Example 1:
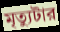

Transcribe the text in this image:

মৃত্যুটার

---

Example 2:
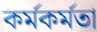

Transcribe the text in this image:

কর্মকর্মতা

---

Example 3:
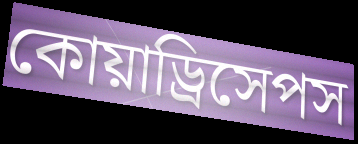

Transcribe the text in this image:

কোয়াড্রিসেপস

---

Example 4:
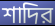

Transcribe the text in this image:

শাদির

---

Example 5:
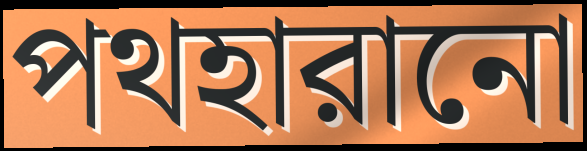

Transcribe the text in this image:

পথহারানো